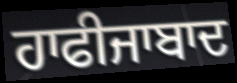
ਹਾਫੀਜਾਬਾਦ